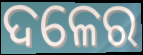
ଦଳେର